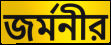
জর্মনীর